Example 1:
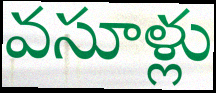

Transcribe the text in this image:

వసూళ్లు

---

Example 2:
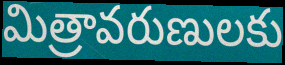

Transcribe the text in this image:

మిత్రావరుణులకు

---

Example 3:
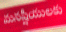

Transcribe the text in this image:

మనష్షీయులకు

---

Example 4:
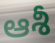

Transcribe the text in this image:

ఆశీ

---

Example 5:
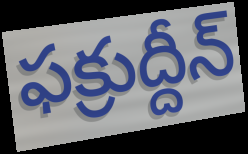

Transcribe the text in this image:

ఫక్రుద్దీన్